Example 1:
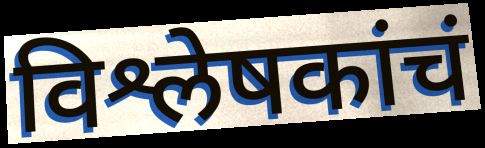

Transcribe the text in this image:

विश्लेषकांचं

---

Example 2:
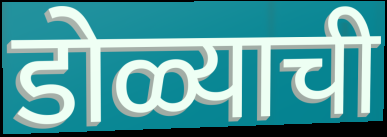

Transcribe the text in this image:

डोळ्याची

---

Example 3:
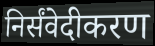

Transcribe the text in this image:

निर्संवेदीकरण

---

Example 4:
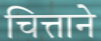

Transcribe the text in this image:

चित्ताने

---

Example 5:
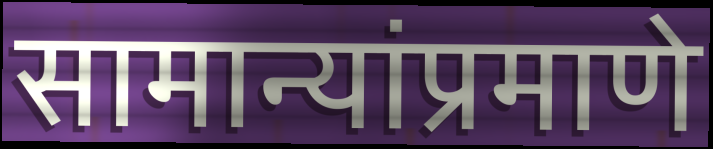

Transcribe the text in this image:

सामान्यांप्रमाणे